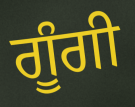
ਗੂੰਗੀ